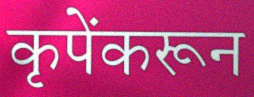
कृपेंकरून